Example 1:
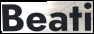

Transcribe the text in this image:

Beati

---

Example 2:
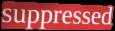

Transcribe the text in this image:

suppressed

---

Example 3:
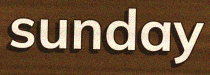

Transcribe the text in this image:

sunday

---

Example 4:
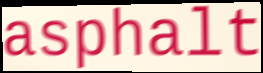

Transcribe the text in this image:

asphalt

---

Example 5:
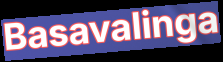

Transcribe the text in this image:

Basavalinga